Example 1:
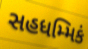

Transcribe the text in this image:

સહધમ્મિકં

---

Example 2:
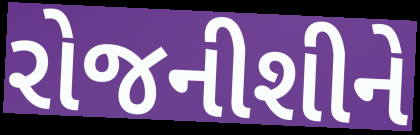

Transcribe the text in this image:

રોજનીશીને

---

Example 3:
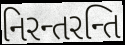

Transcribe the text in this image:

નિરન્તરન્તિ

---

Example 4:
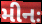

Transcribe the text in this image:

મીનઃ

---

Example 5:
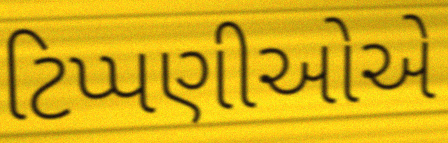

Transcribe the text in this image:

ટિપ્પણીઓએ